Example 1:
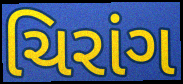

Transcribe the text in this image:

ચિરાંગ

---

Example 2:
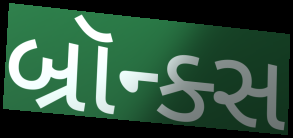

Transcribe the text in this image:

બ્રૉન્ક્સ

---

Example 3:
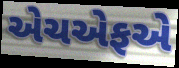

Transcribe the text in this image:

એચએફએ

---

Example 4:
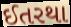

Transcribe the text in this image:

ઈતરથા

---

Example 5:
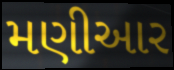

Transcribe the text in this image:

મણીઆર